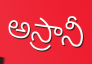
అస్రానీ